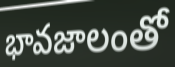
భావజాలంతో